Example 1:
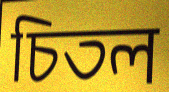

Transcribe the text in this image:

চিতল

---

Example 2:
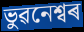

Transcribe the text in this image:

ভুৱনেশ্বৰ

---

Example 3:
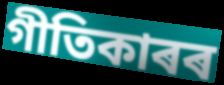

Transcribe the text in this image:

গীতিকাৰৰ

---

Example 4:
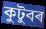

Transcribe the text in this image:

কুটুবৰ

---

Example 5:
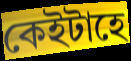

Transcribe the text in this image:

কেইটাহে